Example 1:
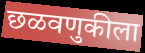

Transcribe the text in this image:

छळवणुकीला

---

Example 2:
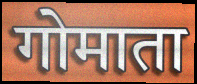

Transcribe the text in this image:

गोमाता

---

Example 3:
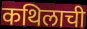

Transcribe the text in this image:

कथिलाची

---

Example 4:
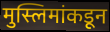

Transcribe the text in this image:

मुस्लिमांकडून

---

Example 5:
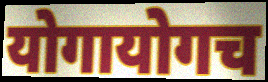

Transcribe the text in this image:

योगायोगच